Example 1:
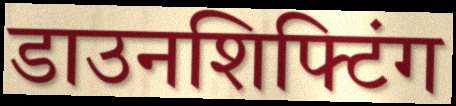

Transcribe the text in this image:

डाउनशिफ्टिंग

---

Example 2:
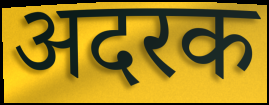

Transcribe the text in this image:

अदरक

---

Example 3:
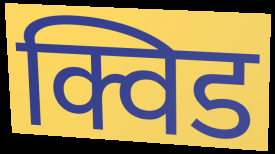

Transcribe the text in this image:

क्विड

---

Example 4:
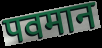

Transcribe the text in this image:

पवमान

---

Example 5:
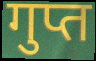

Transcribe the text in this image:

गुप्त